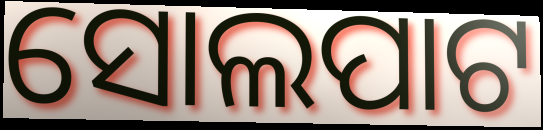
ସୋଲପାଟ